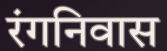
रंगनिवास